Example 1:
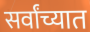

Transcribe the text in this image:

सर्वांच्यात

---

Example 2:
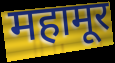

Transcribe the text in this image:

महामूर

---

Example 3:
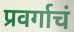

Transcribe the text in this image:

प्रवर्गाचं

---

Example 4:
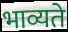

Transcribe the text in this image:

भाव्यते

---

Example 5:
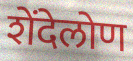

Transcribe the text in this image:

शेंदेलोण